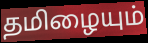
தமிழையும்